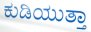
ಕುಡಿಯುತ್ತಾ